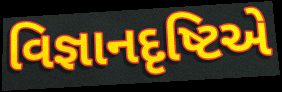
વિજ્ઞાનદૃષ્ટિએ